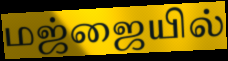
மஜ்ஜையில்